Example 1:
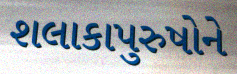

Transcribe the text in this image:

શલાકાપુરુષોને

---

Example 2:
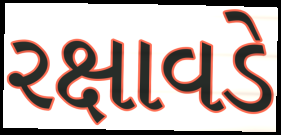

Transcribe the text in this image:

રક્ષાવડે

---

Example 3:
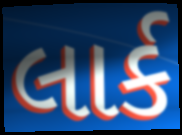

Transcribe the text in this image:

લાર્ક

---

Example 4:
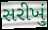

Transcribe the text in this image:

સરીખું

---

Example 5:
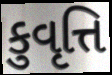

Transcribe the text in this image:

કુવૃત્તિ